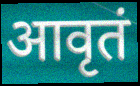
आवृतं